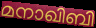
മനാഖിബി